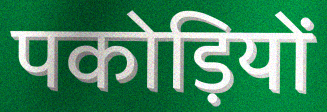
पकोड़ियों